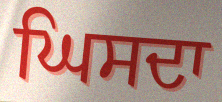
ਘਿਸਦਾ